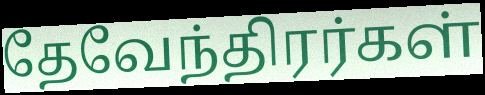
தேவேந்திரர்கள்